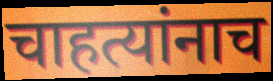
चाहत्यांनाच